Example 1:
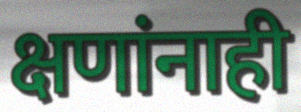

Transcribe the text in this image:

क्षणांनाही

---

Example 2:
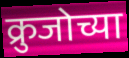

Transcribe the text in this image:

क्रुजोच्या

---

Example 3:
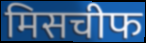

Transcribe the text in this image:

मिसचीफ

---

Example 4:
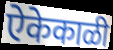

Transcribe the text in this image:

ऐकेकाळी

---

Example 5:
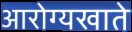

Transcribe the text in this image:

आरोग्यखाते